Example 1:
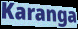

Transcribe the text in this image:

Karanga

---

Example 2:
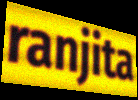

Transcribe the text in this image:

ranjita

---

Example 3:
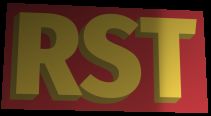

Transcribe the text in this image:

RST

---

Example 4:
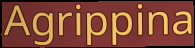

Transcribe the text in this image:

Agrippina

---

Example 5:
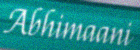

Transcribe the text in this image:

Abhimaani